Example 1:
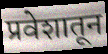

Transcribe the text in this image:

प्रवेशातून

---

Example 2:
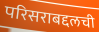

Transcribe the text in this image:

परिसराबद्दलची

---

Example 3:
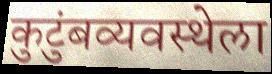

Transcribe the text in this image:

कुटुंबव्यवस्थेला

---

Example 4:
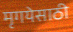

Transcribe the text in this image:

मृगयेसाठी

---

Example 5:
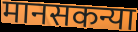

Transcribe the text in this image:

मानसकन्या